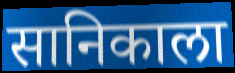
सानिकाला